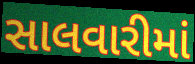
સાલવારીમાં